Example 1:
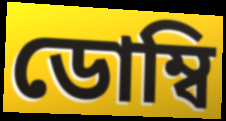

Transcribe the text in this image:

ডোম্বি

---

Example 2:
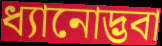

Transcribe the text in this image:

ধ্যানোদ্ভবা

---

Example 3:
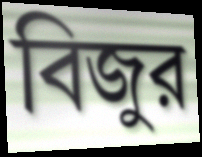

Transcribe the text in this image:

বিজুর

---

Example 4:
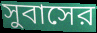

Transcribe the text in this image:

সুবাসের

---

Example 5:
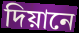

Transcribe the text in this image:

দিয়ানে